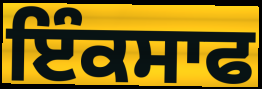
ਇੰਕਸਾਫ